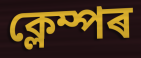
ক্লেম্পৰ